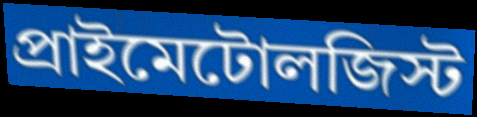
প্রাইমেটোলজিস্ট